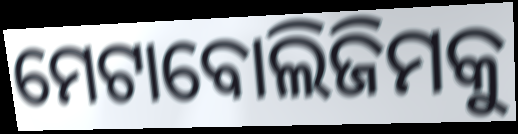
ମେଟାବୋଲିଜିମକୁ